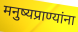
मनुष्यप्राण्यांना